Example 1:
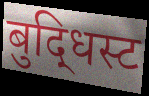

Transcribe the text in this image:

बुद्धिस्ट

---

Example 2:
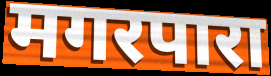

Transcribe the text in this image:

मगरपारा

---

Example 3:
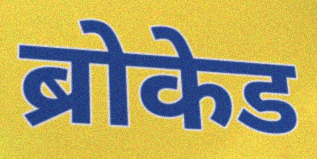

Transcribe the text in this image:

ब्रोकेड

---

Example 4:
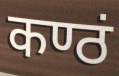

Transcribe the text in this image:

कण्ठं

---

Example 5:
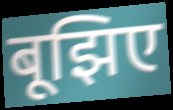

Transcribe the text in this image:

बूझिए